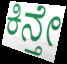
ಕಿನ್ತೇ